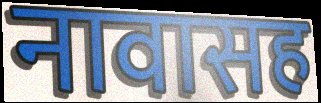
नावासह